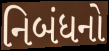
નિબંધનો